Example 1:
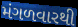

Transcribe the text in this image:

મંગળવારથી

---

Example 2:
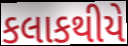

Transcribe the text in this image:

કલાકથીયે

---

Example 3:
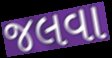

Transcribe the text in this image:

જલવા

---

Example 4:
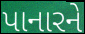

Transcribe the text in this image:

પાનારને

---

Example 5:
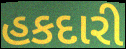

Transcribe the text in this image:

હકદારી